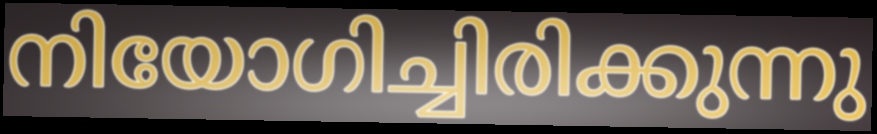
നിയോഗിച്ചിരിക്കുന്നു